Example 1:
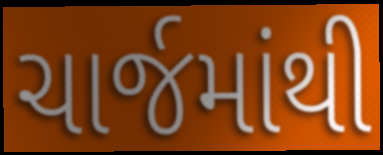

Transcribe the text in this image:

ચાર્જમાંથી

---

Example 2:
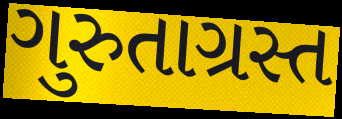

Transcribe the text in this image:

ગુરુતાગ્રસ્ત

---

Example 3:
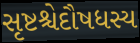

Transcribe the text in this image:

સૃષ્ટશ્ચેદૌષધસ્ય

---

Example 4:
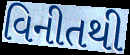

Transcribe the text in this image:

વિનીતથી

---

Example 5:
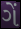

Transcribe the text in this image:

ગેં